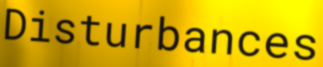
Disturbances